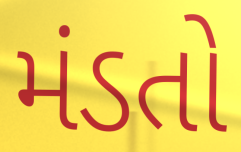
મંડતો